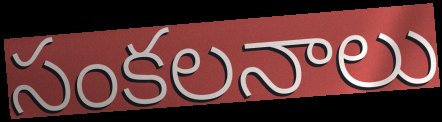
సంకలనాలు